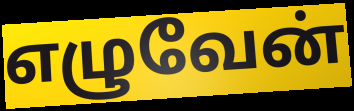
எழுவேன்